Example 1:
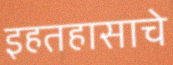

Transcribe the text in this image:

इहतहासाचे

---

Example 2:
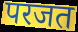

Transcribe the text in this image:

परजत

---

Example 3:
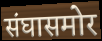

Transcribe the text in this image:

संघासमोर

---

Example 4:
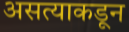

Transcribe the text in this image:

असत्याकडून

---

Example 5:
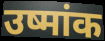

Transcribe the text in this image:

उष्मांक